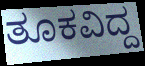
ತೂಕವಿದ್ದ